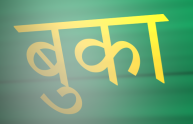
बुका